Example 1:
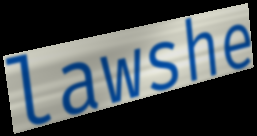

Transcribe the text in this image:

lawshe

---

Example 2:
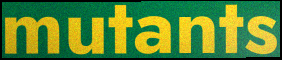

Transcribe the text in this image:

mutants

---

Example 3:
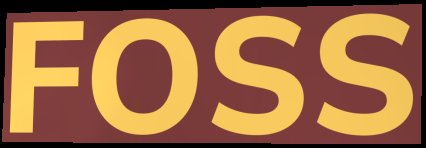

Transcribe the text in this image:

FOSS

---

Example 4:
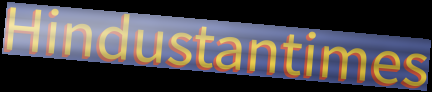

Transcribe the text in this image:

Hindustantimes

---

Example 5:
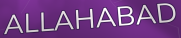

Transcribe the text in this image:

ALLAHABAD